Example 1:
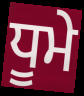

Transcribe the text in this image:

ਧੂਮੇ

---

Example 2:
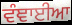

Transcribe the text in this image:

ਵੰਞਾਈਆ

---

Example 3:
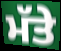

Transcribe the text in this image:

ਮੱਤੇ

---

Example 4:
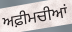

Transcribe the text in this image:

ਅਫ਼ੀਮਚੀਆਂ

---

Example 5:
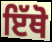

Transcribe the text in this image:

ਇੱਥੋ